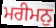
ਮਰੀਮਨੁ